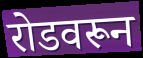
रोडवरून